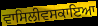
ਵਾਸਿਲੀਵਸਕਾਇਆ